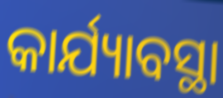
କାର୍ଯ୍ୟାବସ୍ଥା